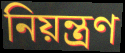
নিয়ন্ত্ৰণ